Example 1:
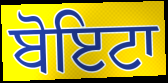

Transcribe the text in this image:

ਬੋਇਟਾ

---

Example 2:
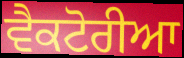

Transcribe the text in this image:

ਵੈਕਟੋਰੀਆ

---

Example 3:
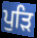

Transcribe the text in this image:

ਪੁੜਿ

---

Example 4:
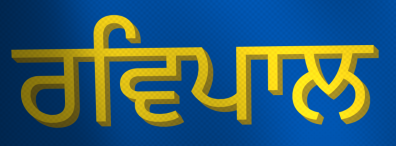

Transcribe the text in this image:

ਰਵਿਪਾਲ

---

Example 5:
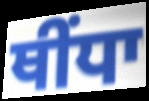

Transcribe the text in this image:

ਥੀਂਧਾ